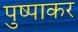
पुष्पाकर